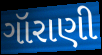
ગૉરાણી